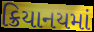
ક્રિયાનયમાં